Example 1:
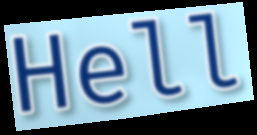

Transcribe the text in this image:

Hell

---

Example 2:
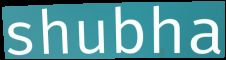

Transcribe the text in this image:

shubha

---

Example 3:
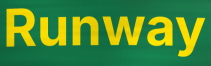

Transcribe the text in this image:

Runway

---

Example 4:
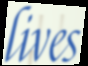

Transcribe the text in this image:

lives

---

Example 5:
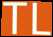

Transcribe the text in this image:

TL